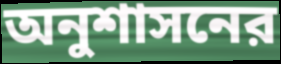
অনুশাসনের